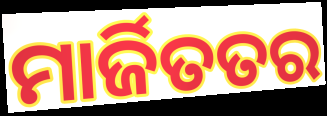
ମାର୍ଜିତତର